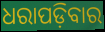
ଧରାପଡ଼ିବାର